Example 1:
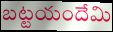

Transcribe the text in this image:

బట్టయందేమి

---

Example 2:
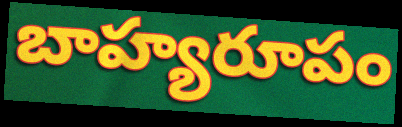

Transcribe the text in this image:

బాహ్యరూపం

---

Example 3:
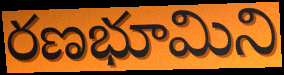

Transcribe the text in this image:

రణభూమిని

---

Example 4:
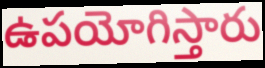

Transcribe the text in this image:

ఉపయోగిస్తారు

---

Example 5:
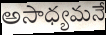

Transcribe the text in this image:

అసాధ్యమనే